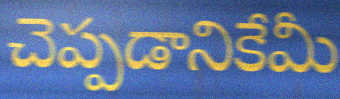
చెప్పడానికేమీ